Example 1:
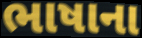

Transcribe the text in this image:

ભાષાના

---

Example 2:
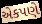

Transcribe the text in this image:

એકપણે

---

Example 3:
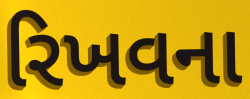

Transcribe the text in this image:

રિખવના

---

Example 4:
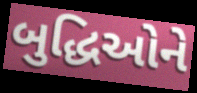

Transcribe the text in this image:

બુદ્ધિઓને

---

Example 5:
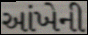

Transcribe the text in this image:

આંખેની